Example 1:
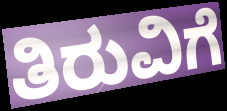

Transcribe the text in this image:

ತಿರುವಿಗೆ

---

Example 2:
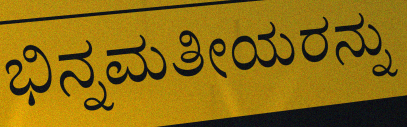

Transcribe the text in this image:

ಭಿನ್ನಮತೀಯರನ್ನು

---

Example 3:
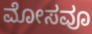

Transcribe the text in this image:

ಮೋಸವೂ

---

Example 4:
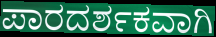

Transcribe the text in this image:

ಪಾರದರ್ಶಕವಾಗಿ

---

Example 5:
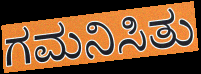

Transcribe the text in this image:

ಗಮನಿಸಿತು